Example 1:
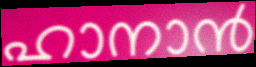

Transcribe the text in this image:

ഹാനാൻ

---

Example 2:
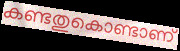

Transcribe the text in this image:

കണ്ടതുകൊണ്ടാണ്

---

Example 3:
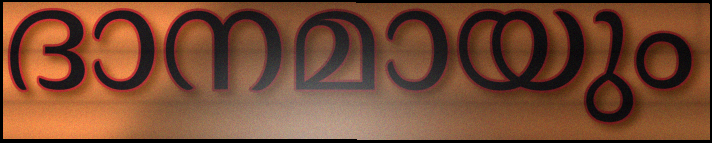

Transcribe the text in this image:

ദാനമായും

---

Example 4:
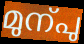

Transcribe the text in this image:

മുന്പു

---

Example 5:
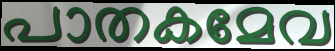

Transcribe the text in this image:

പാതകമേവ